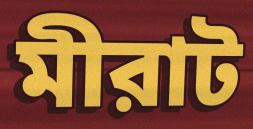
মীরাট